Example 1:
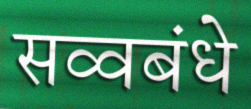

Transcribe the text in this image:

सव्वबंधे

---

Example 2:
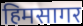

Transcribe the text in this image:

हिमसागर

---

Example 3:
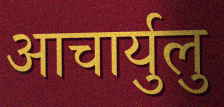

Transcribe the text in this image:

आचार्युलु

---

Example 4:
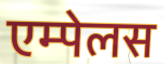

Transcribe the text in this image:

एम्पेलस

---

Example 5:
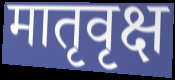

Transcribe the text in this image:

मातृवृक्ष